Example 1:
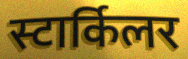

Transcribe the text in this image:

स्टार्किलर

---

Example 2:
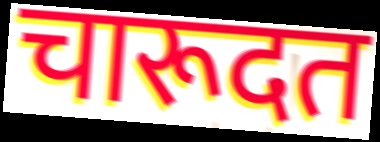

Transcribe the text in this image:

चारूदत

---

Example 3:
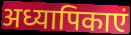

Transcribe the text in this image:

अध्यापिकाएं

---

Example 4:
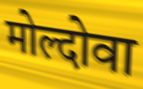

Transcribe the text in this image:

मोल्दोवा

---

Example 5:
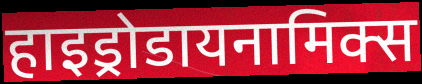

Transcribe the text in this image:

हाइड्रोडायनामिक्स